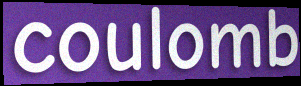
coulomb